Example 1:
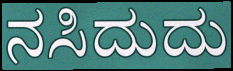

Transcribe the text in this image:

ನಸಿದುದು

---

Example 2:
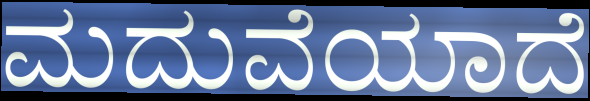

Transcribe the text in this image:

ಮದುವೆಯಾದೆ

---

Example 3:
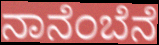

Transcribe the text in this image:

ನಾನೆಂಬೆನೆ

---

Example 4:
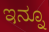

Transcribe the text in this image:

ಇನ್ನೂ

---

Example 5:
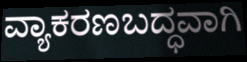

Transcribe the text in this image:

ವ್ಯಾಕರಣಬದ್ಧವಾಗಿ